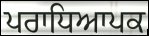
ਪਰਾਧਿਆਪਕ